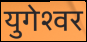
युगेश्वर